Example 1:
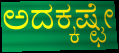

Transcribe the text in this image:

ಅದಕ್ಕಷ್ಟೇ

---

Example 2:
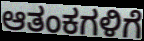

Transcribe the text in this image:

ಆತಂಕಗಳಿಗೆ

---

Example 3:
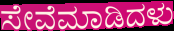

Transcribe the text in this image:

ಸೇವೆಮಾಡಿದಳು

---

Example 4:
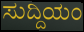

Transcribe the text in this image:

ಸುದ್ದಿಯಂ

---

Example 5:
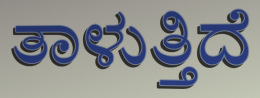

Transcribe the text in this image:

ತಾಳುತ್ತಿದೆ